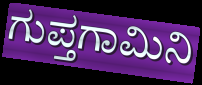
ಗುಪ್ತಗಾಮಿನಿ